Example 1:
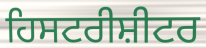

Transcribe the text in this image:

ਹਿਸਟਰੀਸ਼ੀਟਰ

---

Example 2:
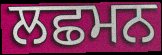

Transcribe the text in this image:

ਲਛਮਨ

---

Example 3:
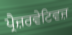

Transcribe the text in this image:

ਪ੍ਰੈਜ਼ਰਵੇਟਿਵਜ਼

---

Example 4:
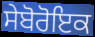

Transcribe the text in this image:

ਸੇਬੋਰੋਇਕ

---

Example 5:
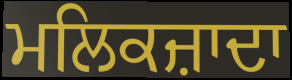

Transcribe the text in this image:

ਮਲਿਕਜ਼ਾਦਾ